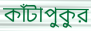
কাঁটাপুকুর